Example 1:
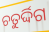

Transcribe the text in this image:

ଚତୁର୍ଦ୍ଦିଗ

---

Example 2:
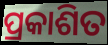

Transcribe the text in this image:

ପ୍ରକାଶିତ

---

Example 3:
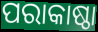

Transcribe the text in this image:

ପରାକାଷ୍ଠା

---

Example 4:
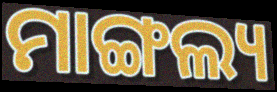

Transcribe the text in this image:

ମାଙ୍ଗଲ୍ୟ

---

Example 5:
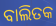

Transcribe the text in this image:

ବାଲିତକ